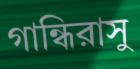
গান্ধিরাসু